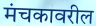
मंचकावरील